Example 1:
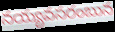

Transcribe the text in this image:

నయ్యవసరంబున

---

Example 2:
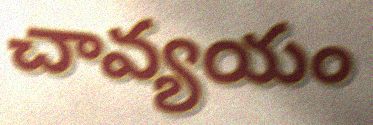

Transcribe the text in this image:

చావ్యయం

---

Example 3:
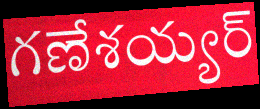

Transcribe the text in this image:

గణేశయ్యర్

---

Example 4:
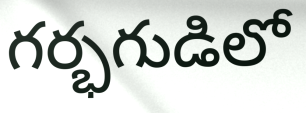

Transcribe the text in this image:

గర్భగుడిలో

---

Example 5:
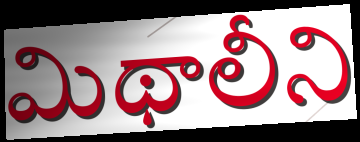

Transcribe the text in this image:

మిథాలీని